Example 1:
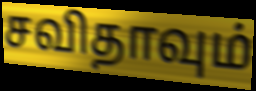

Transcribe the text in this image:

சவிதாவும்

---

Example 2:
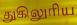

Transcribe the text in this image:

துகிலுரிய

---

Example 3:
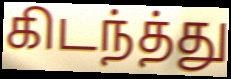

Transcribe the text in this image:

கிடந்த்து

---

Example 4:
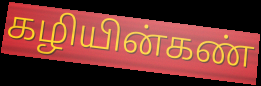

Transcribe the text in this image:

கழியின்கண்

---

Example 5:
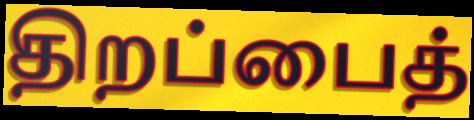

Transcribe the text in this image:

திறப்பைத்